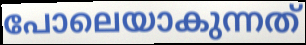
പോലെയാകുന്നത്